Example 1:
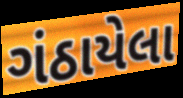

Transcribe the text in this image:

ગંઠાયેલા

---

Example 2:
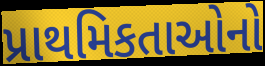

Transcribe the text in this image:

પ્રાથમિકતાઓનો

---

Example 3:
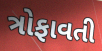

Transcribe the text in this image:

ત્રોફાવતી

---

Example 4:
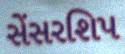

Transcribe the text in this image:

સેંસરશિપ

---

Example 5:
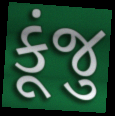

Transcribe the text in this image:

કૂંજુ